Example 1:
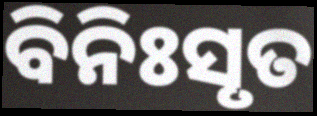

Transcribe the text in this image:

ବିନିଃସୃତ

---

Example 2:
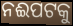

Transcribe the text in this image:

ନଈପଟକୁ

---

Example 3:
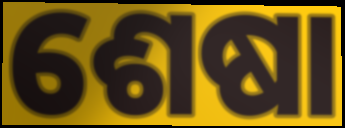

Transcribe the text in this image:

ଶେଷା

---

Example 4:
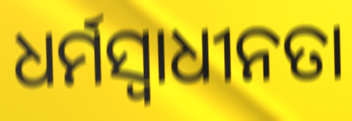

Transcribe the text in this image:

ଧର୍ମସ୍ୱାଧୀନତା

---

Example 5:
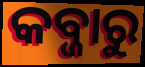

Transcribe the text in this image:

କବ୍ଜାରୁ